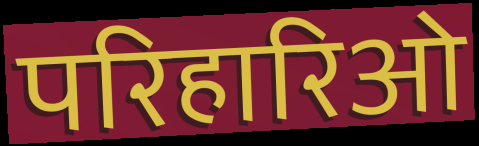
परिहारिओ